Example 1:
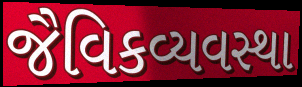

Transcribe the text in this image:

જૈવિકવ્યવસ્થા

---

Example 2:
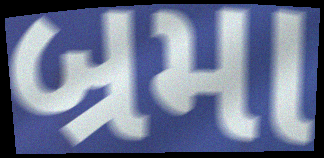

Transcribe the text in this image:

બ્રમા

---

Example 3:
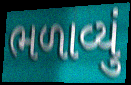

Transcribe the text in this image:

ભળાવ્યું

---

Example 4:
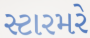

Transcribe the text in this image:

સ્ટારમરે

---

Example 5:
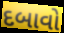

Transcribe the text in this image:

દબાવો